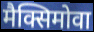
मैक्सिमोवा